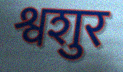
श्वशुर